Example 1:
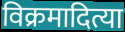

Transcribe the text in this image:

विक्रमादित्या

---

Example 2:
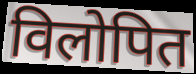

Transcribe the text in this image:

विलोपित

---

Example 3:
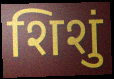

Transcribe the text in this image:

शिशुं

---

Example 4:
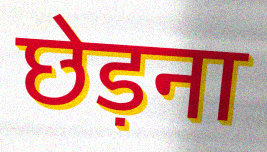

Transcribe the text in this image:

छेड़ना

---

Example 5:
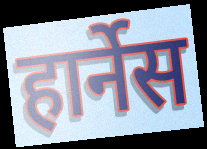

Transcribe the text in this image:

हार्नेस